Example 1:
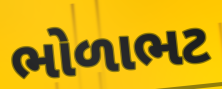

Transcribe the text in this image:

ભોળાભટ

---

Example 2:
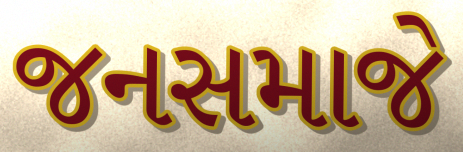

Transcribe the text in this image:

જનસમાજે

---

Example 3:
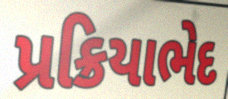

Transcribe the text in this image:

પ્રક્રિયાભેદ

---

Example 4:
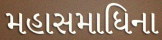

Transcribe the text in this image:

મહાસમાધિના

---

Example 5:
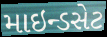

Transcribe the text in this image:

માઇન્ડસેટ